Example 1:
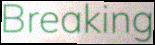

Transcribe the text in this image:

Breaking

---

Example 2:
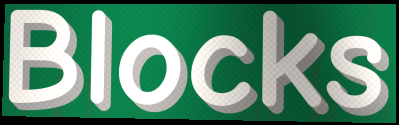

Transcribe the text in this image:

Blocks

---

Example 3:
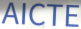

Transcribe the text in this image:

AICTE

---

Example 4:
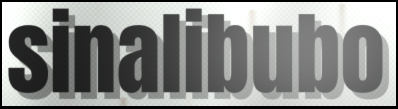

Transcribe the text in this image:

sinalibubo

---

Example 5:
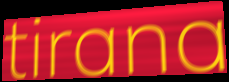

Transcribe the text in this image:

tirana